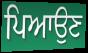
ਪਿਆਉਣ